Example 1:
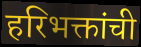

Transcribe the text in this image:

हरिभक्तांची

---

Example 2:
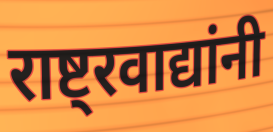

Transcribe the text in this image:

राष्ट्रवाद्यांनी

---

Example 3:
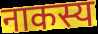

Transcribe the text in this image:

नाकस्य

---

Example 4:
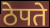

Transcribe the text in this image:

ठेपते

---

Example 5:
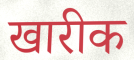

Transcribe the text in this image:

खारीक